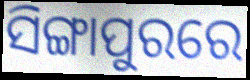
ସିଙ୍ଗାପୁରରେ